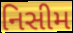
નિસીમ